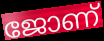
ജോണ്